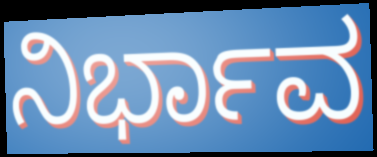
ನಿರ್ಭಾವ